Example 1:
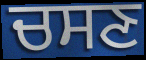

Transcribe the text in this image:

ਚਸਣ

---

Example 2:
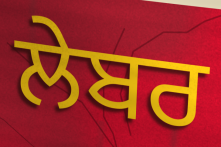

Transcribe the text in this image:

ਲੇਬਰ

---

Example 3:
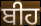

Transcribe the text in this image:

ਬੀਹ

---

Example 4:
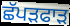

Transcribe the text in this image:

ਛੱਪੜਫਾੜ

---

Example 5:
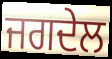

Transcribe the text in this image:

ਜਗਦੇਲ